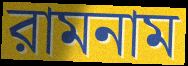
রামনাম